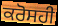
ਕਰੋਸਹੀ